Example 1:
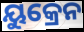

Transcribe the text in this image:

ୟୁକ୍ରେନ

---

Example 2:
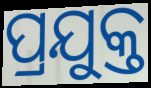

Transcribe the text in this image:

ପ୍ରଯୁକ୍ତ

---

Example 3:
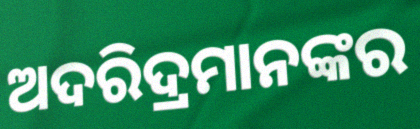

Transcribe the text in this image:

ଅଦରିଦ୍ରମାନଙ୍କର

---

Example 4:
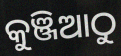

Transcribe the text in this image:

କୁଞ୍ଜିଆଠୁ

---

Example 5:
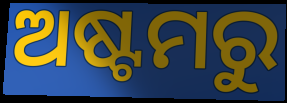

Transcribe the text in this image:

ଅଷ୍ଟମରୁ